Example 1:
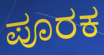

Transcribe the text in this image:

ಪೂರಕ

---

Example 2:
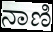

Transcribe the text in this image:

ನಾಣಿ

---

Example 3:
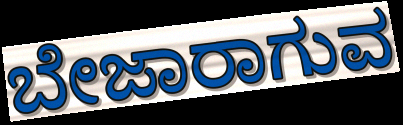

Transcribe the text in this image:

ಬೇಜಾರಾಗುವ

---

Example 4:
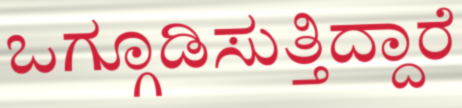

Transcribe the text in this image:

ಒಗ್ಗೂಡಿಸುತ್ತಿದ್ದಾರೆ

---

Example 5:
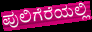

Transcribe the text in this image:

ಪುಲಿಗೆರೆಯಲ್ಲಿ